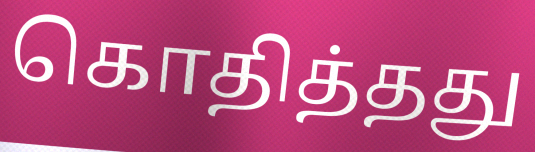
கொதித்தது